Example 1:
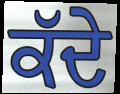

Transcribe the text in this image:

ਕੱਦੇ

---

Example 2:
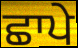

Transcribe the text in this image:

ਛਾਪੇ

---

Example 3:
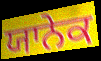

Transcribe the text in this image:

ਯਾਨੇਕ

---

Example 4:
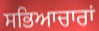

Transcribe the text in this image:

ਸਭਿਆਚਾਰਾਂ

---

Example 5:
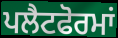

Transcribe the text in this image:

ਪਲੈਟਫੋਰਮਾਂ